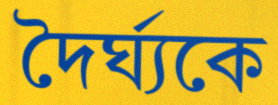
দৈর্ঘ্যকে